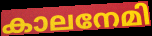
കാലനേമി